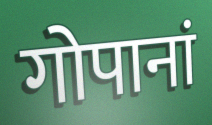
गोपानां